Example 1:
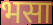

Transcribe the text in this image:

भसा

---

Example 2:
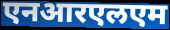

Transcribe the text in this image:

एनआरएलएम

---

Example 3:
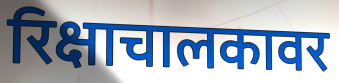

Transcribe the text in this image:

रिक्षाचालकावर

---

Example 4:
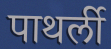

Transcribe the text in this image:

पाथर्ली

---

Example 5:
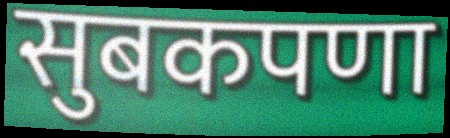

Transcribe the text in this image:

सुबकपणा